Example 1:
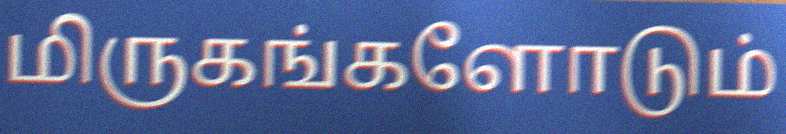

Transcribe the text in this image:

மிருகங்களோடும்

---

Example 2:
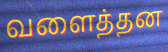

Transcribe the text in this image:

வளைத்தன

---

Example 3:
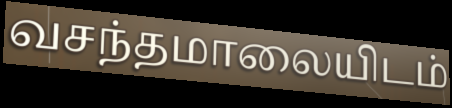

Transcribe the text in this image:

வசந்தமாலையிடம்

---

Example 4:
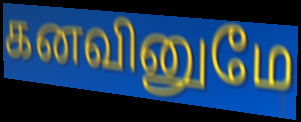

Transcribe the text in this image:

கனவினுமே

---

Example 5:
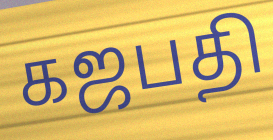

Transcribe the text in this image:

கஜபதி